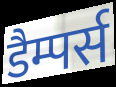
डैम्पर्स